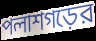
পলাশগড়ের